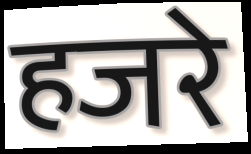
हजरे